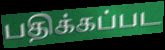
பதிக்கப்பட